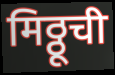
मिठ्ठूची